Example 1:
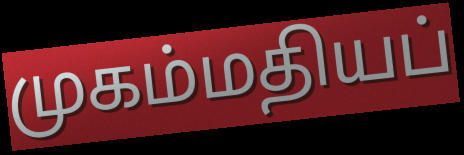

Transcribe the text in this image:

முகம்மதியப்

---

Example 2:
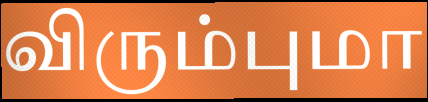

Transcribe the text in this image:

விரும்புமா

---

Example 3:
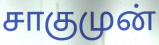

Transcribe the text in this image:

சாகுமுன்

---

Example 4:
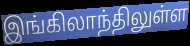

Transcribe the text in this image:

இங்கிலாந்திலுள்ள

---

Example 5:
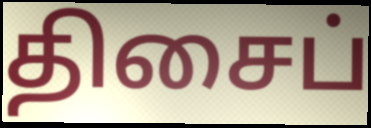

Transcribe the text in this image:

திசைப்